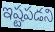
ఇష్టపడని